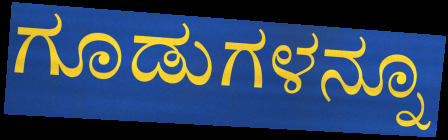
ಗೂಡುಗಳನ್ನೂ